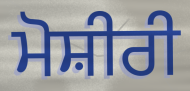
ਮੋਸ਼ੀਰੀ